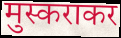
मुस्कराकर